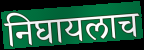
निघायलाच